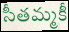
సీతమ్మకీ